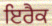
ਇਰੈਕ